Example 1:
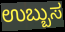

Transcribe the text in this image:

ಉಬ್ಬುಸ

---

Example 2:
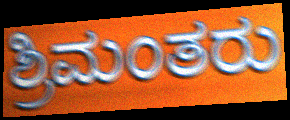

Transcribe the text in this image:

ಶ್ರಿಮಂತರು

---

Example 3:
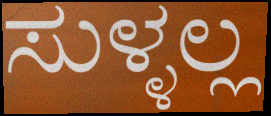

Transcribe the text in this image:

ಸುಳ್ಳಲ್ಲ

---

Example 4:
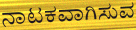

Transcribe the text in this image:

ನಾಟಕವಾಗಿಸುವ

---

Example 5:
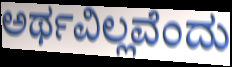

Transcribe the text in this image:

ಅರ್ಥವಿಲ್ಲವೆಂದು